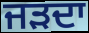
ਜੜਦਾ